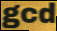
gcd